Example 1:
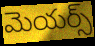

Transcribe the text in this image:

మెయర్స్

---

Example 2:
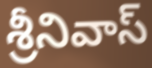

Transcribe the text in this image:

శ్రీనివాస్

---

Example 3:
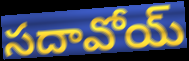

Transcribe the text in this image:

సదావోయ్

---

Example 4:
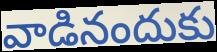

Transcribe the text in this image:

వాడినందుకు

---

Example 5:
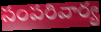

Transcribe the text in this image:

సంపరివార్య